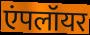
एंपलॉयर